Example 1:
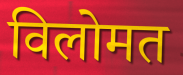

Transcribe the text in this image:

विलोमत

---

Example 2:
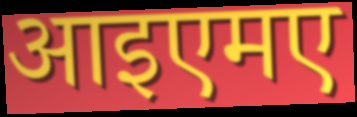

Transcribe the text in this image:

आइएमए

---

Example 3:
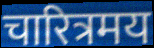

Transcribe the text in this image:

चारित्रमय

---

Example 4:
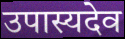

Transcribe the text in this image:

उपास्यदेव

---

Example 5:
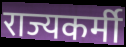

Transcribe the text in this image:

राज्यकर्मी